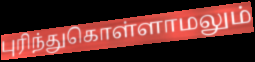
புரிந்துகொள்ளாமலும்